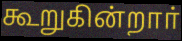
கூறுகின்றார்